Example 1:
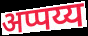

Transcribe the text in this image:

अप्पय्य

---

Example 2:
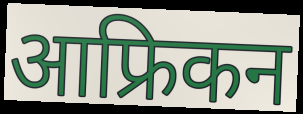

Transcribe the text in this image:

आफ्रिकन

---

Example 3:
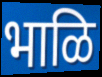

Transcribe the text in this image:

भाळि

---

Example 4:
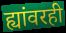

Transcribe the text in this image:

ह्यांवरही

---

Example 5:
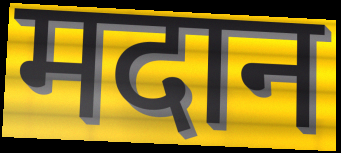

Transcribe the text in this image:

मदान